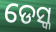
ଡେସ୍କ